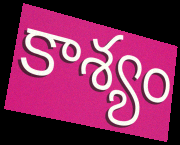
కాశ్యం